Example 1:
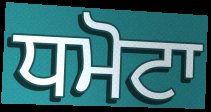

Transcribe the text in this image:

ਧਮੋਟਾ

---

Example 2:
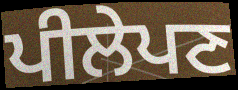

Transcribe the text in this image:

ਪੀਲੇਪਣ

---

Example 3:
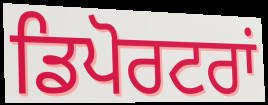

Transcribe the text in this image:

ਡਿਪੋਰਟਰਾਂ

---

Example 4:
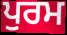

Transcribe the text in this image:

ਪੁਰਮ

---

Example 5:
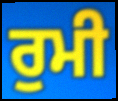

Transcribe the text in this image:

ਰੁਮੀ